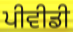
ਪੀਵੀਡੀ